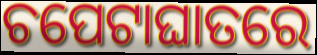
ଚପେଟାଘାତରେ